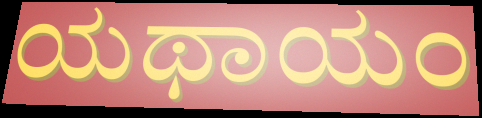
ಯಥಾಯಂ